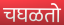
चघळतो